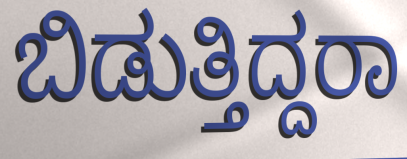
ಬಿಡುತ್ತಿದ್ದರಾ